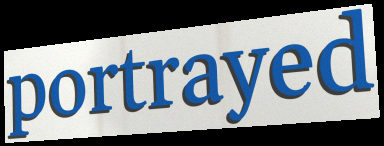
portrayed